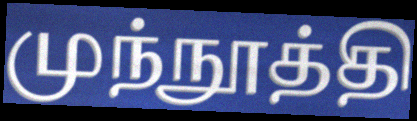
முந்நூத்தி